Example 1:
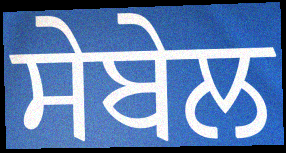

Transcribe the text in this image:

ਸੇਬੇਲ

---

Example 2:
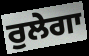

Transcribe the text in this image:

ਰੁਲੇਗਾ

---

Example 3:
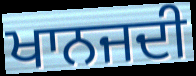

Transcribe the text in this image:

ਖਾਨਜਦੀ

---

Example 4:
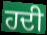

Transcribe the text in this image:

ਹਦੀ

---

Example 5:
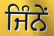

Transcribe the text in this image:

ਜਿੰਨੇਂ